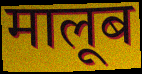
मालूब